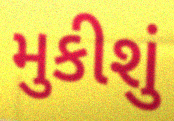
મુકીશું